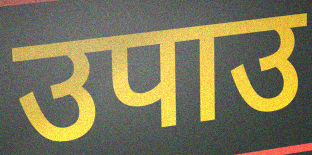
उपाउ